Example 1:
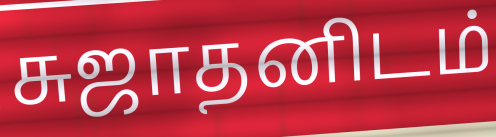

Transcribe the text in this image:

சுஜாதனிடம்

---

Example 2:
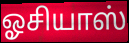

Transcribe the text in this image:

ஓசியாஸ்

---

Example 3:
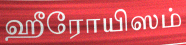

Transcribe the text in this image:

ஹீரோயிஸம்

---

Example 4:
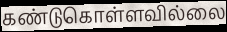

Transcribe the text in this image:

கண்டுகொள்ளவில்லை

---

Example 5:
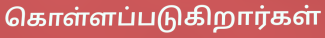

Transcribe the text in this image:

கொள்ளப்படுகிறார்கள்